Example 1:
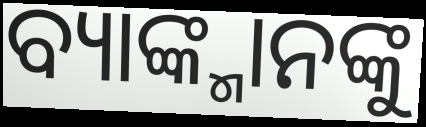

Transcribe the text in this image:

ବ୍ୟାଙ୍କ୍ମାନଙ୍କୁ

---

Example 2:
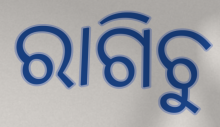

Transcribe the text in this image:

ରାଗିଚୁ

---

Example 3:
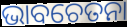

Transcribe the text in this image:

ଭାବଚେତନା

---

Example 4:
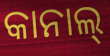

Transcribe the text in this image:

କାନାଲ୍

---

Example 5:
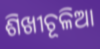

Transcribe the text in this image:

ଶିଖୀଚୂଳିଆ